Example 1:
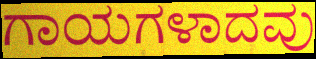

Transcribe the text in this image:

ಗಾಯಗಳಾದವು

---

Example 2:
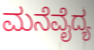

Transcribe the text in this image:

ಮನೆವೈದ್ಯ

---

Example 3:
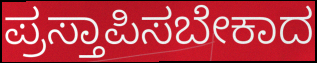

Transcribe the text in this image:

ಪ್ರಸ್ತಾಪಿಸಬೇಕಾದ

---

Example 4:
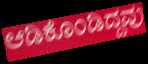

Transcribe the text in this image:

ಆಡಿಕೊಂಡಿದ್ದವು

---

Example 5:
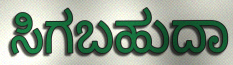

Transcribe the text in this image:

ಸಿಗಬಹುದಾ